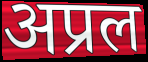
अप्रल